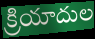
క్రియాదుల